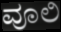
ವೂಲಿ